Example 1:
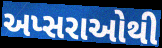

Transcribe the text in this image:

અપ્સરાઓથી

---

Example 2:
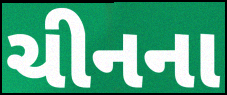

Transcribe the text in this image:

ચીનના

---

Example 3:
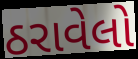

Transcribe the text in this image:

ઠરાવેલો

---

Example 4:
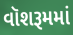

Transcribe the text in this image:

વૉશરૂમમાં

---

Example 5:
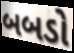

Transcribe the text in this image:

બબડો